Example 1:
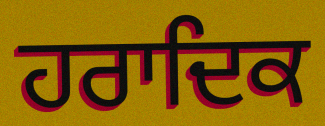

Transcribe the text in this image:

ਹਰਾਦਿਕ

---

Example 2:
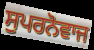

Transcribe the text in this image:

ਸੁਪਰਨੋਵਾਜ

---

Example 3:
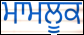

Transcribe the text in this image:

ਮਾਮਲੂਕ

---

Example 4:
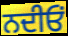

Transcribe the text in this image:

ਨਦੀਓਂ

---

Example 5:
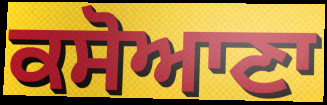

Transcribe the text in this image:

ਕਸੋਆਣਾ